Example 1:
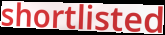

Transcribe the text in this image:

shortlisted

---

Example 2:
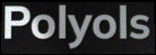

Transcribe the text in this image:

Polyols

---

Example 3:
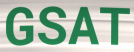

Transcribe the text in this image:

GSAT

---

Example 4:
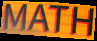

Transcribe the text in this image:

MATH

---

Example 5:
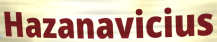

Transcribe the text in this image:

Hazanavicius